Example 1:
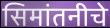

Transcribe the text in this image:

सिमांतनीचे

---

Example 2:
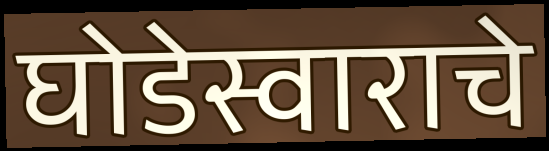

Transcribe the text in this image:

घोडेस्वाराचे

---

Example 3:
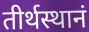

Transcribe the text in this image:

तीर्थस्थानं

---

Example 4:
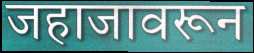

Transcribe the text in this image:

जहाजावरून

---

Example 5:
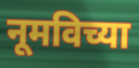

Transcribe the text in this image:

नूमविच्या